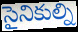
సైనికుల్ని